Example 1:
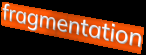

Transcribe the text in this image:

fragmentation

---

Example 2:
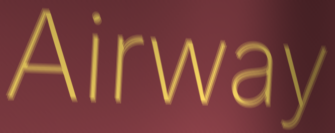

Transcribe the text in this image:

Airway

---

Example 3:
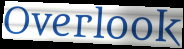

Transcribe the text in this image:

Overlook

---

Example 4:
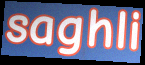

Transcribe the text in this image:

saghli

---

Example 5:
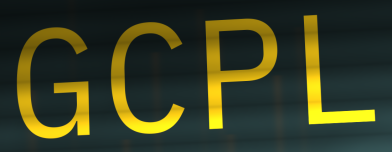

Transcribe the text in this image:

GCPL